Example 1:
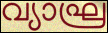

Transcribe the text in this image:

വ്യാഘ്ര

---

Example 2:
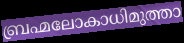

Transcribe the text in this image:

ബ്രഹ്മലോകാധിമുത്താ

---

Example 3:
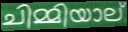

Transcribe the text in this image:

ചിമ്മിയാല്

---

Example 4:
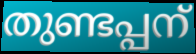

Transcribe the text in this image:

തുണ്ടപ്പന്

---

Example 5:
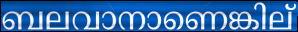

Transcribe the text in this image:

ബലവാനാണെങ്കില്